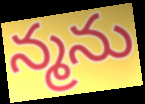
న్మను